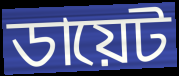
ডায়েট